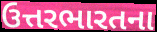
ઉત્તરભારતના